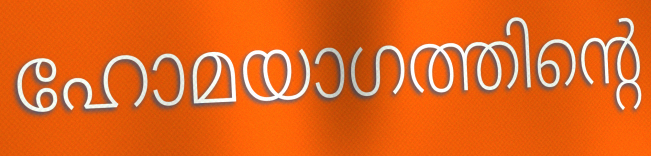
ഹോമയാഗത്തിന്റെ